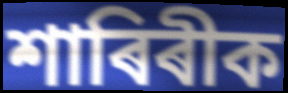
শাৰিৰীক